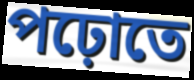
পঢ়োতে